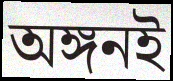
অঙ্গনই